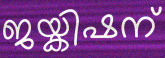
ജയ്കിഷന്